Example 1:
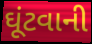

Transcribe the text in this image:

ઘૂંટવાની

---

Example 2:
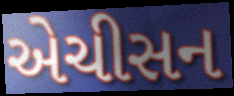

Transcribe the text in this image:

એચીસન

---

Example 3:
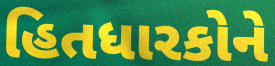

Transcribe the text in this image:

હિતધારકોને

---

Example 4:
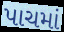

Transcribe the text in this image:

પાચમાં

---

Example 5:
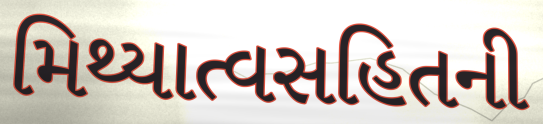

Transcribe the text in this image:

મિથ્યાત્વસહિતની